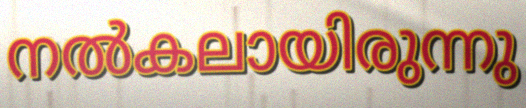
നൽകലായിരുന്നു